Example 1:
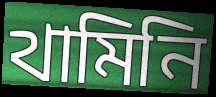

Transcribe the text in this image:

থামিনি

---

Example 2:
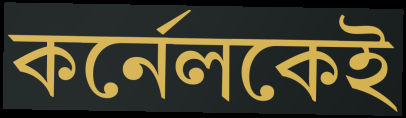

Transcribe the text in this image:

কর্নেলকেই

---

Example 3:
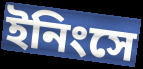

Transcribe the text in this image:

ইনিংসে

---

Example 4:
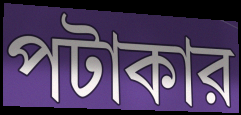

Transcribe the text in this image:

পটাকার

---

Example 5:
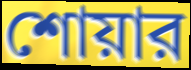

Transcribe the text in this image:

শোয়ার